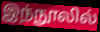
இந்நூலில்